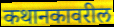
कथानकावरील